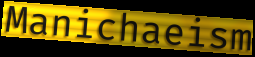
Manichaeism